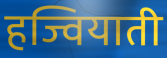
हज्वियाती